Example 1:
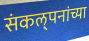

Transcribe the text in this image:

संकल्पनांच्या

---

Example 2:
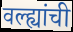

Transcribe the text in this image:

वल्ह्यांची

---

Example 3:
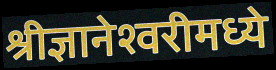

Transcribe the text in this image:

श्रीज्ञानेश्वरीमध्ये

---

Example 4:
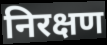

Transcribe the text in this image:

निरक्षण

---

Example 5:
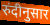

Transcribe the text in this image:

रुंदीनुसार